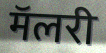
मॅलरी